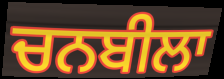
ਚਨਬੀਲਾ